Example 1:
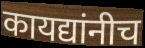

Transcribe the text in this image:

कायद्यांनीच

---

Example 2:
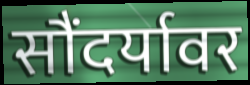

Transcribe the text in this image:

सौंदर्यावर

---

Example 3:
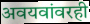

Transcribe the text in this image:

अवयवांवरही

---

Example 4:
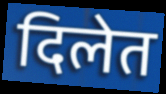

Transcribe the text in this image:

दिलेत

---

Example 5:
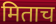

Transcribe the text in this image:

मिताच